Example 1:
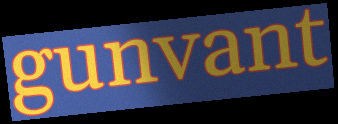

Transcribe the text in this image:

gunvant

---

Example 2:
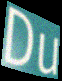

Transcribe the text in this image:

Du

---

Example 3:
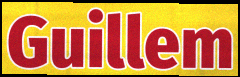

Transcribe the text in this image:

Guillem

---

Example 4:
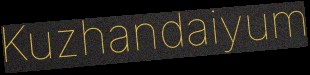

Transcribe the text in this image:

Kuzhandaiyum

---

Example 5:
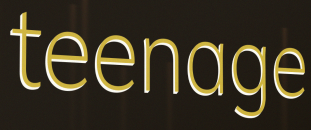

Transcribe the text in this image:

teenage